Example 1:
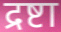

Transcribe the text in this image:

द्रष्टा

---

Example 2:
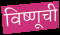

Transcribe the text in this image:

विष्णूची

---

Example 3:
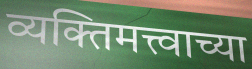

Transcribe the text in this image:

व्यक्तिमत्त्वाच्या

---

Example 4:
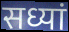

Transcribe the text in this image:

सध्यां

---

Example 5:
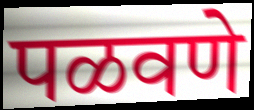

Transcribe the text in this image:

पळवणे